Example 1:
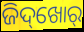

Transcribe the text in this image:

ଜିଦ୍‌ଖୋର୍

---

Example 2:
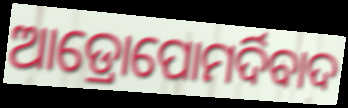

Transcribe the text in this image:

ଆଡ୍ରୋପୋମର୍ଦିବାଦ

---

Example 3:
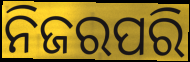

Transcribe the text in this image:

ନିଜରପରି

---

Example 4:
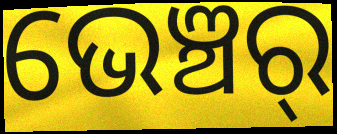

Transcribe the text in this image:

ଭେଞ୍ଚର୍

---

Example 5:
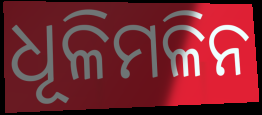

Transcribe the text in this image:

ଧୂଳିମଳିନ